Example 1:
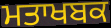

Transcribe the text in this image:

ਮਤਾਖਬਕ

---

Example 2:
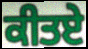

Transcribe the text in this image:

ਕੀਤਏ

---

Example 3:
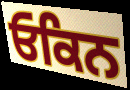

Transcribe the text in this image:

ਓਕਿਨ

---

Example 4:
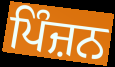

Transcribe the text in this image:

ਪਿੰਜ਼ਨ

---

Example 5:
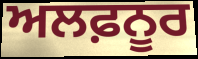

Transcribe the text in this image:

ਅਲਫ਼ਨੂਰ